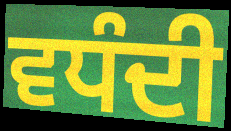
ਵਧੰਦੀ